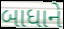
બાધાને